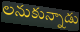
లనుకున్నాడు